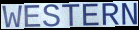
WESTERN